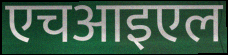
एचआइएल